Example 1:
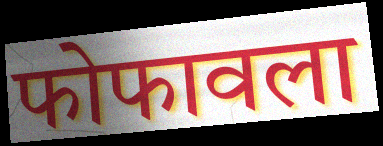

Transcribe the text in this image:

फोफावला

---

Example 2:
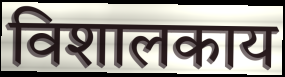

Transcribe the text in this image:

विशालकाय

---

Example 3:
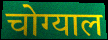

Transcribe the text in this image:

चोग्याल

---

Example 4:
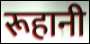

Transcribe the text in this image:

रूहानी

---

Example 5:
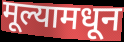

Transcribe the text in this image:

मूल्यामधून